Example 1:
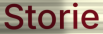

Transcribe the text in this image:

Storie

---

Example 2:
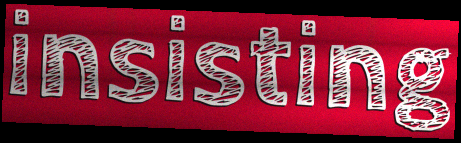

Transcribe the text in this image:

insisting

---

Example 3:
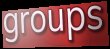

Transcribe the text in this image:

groups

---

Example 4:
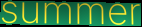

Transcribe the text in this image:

summer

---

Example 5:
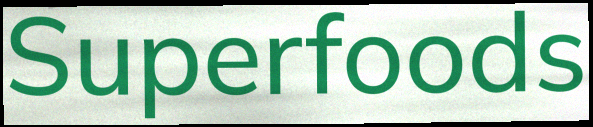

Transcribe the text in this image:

Superfoods